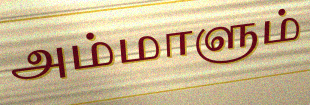
அம்மாளும்